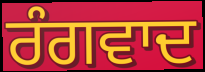
ਰੰਗਵਾਦ